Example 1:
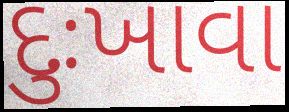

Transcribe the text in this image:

દુઃખાવા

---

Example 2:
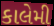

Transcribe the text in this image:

કાલેમી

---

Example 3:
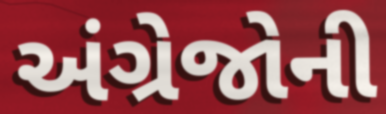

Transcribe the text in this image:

અંગ્રેજોની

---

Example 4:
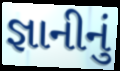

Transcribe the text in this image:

જ્ઞાનીનું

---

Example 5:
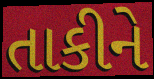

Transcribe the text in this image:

તાકીને